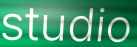
studio